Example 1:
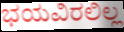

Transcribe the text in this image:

ಭಯವಿರಲಿಲ್ಲ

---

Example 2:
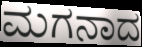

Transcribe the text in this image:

ಮಗನಾದ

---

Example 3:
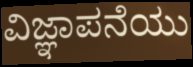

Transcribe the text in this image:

ವಿಜ್ಞಾಪನೆಯು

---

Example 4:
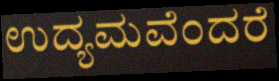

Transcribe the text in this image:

ಉದ್ಯಮವೆಂದರೆ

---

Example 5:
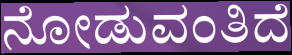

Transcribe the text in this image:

ನೋಡುವಂತಿದೆ